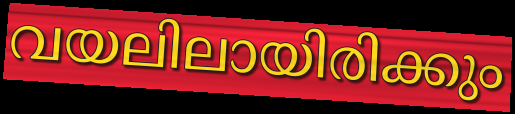
വയലിലായിരിക്കും